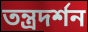
তন্ত্রদর্শন